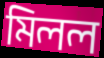
মিলল